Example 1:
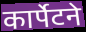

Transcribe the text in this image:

कार्पेटने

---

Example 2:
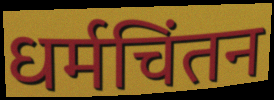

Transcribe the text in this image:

धर्मचिंतन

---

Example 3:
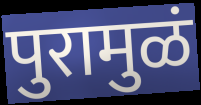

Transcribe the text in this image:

पुरामुळं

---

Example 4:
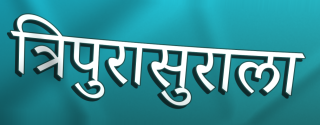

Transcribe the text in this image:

त्रिपुरासुराला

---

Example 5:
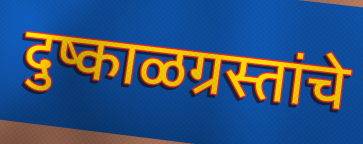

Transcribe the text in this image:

दुष्काळग्रस्तांचे